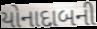
યોનાદાબની